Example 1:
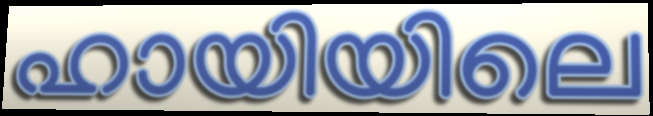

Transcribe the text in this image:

ഹായിയിലെ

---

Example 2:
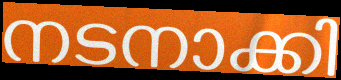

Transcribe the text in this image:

നടനാക്കി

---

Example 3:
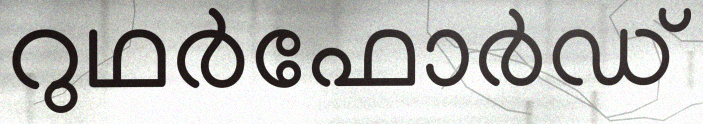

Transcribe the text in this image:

റുഥർഫോർഡ്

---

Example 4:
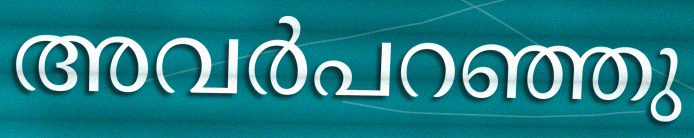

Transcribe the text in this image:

അവർപറഞ്ഞു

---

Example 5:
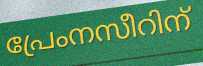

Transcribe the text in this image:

പ്രേംനസീറിന്